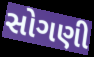
સોગણી